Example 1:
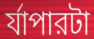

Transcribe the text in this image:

র্যাপারটা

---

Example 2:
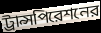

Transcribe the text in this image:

ট্রান্সপিরেশনের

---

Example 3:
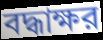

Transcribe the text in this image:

বদ্ধাক্ষর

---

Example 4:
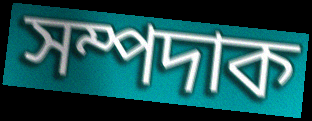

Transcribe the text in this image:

সম্পদাক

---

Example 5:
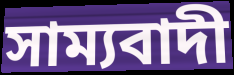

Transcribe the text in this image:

সাম্যবাদী